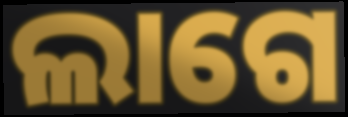
ଲାଗେ